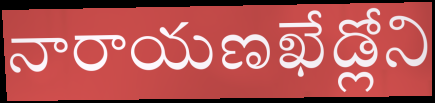
నారాయణఖేడ్లోని